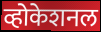
व्होकेशनल